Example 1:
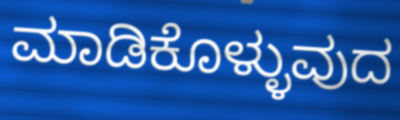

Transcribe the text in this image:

ಮಾಡಿಕೊಳ್ಳುವುದ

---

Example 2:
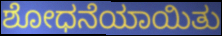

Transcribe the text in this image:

ಶೋಧನೆಯಾಯಿತು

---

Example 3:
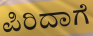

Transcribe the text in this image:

ಪಿರಿದಾಗೆ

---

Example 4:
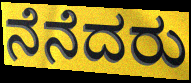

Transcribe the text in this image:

ನೆನೆದರು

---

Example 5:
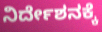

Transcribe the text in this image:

ನಿರ್ದೇಶನಕ್ಕೆ